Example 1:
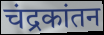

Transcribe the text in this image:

चंद्रकांतन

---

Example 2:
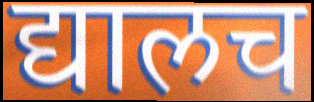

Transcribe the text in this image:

द्यालच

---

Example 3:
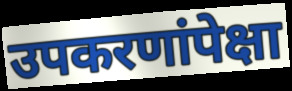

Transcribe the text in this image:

उपकरणांपेक्षा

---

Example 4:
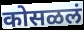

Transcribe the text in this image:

कोसळलं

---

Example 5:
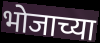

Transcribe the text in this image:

भोजाच्या